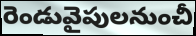
రెండువైపులనుంచీ